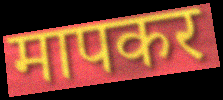
मापकर